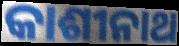
କାଶୀନାଥ